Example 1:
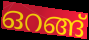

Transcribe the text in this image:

ഒറങ്ങ്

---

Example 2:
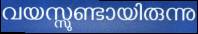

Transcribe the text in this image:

വയസ്സുണ്ടായിരുന്നു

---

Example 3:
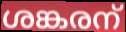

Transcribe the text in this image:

ശങ്കരന്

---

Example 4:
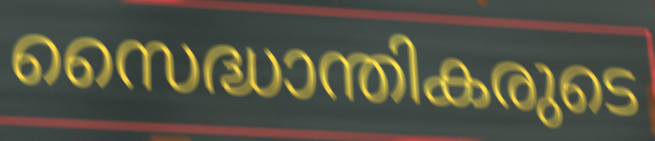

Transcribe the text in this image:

സൈദ്ധാന്തികരുടെ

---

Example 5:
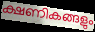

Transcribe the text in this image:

ക്ഷണികങ്ങളും